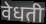
वेधती